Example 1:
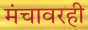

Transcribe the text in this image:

मंचावरही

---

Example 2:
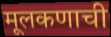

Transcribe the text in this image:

मूलकणाची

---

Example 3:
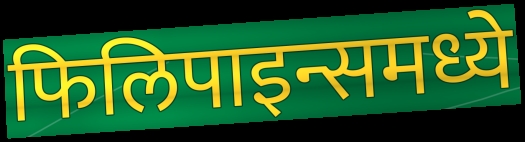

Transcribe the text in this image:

फिलिपाइन्समध्ये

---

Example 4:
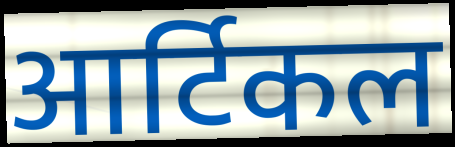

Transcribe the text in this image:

आर्टिकल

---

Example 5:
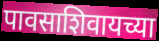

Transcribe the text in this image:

पावसाशिवायच्या